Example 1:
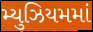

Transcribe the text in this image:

મ્યુઝિયમમાં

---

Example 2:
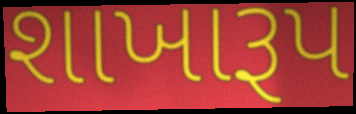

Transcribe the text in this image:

શાખારૂપ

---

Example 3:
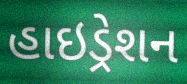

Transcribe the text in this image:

હાઇડ્રેશન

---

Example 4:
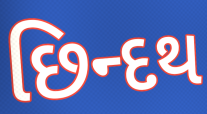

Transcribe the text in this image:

છિન્દથ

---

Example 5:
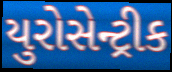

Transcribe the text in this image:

યુરોસેન્ટ્રીક